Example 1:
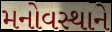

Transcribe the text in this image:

મનોવસ્થાને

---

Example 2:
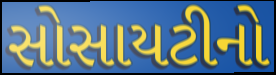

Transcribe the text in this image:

સોસાયટીનો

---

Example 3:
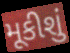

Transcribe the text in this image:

મૂકીશું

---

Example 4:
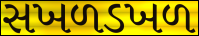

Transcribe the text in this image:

સખળડખળ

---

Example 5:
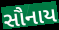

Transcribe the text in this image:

સૌનાય